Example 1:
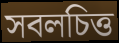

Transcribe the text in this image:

সবলচিত্ত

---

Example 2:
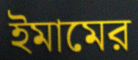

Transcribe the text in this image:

ইমামের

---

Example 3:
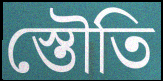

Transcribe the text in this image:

স্তৌতি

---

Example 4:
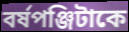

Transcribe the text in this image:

বর্ষপঞ্জিটাকে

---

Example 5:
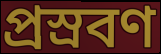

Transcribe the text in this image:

প্রস্রবণ